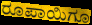
ರೂಪಾಯಿಗೂ